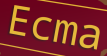
Ecma